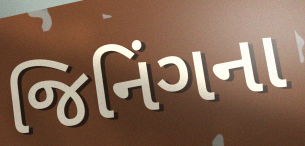
જિનિંગના